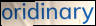
oridinary